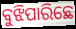
ବୁଝିପାରିଛେ